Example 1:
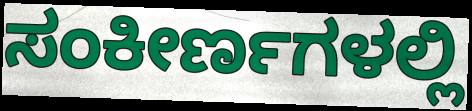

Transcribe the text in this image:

ಸಂಕೀರ್ಣಗಳಲ್ಲಿ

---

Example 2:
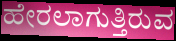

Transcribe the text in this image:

ಹೇರಲಾಗುತ್ತಿರುವ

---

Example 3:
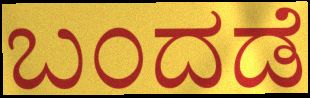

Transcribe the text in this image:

ಬಂದಡೆ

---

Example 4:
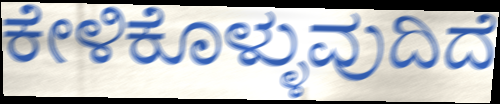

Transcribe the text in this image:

ಕೇಳಿಕೊಳ್ಳುವುದಿದೆ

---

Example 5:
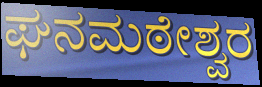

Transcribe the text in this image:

ಘನಮಠೇಶ್ವರ